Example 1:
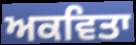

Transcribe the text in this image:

ਅਕਵਿਤਾ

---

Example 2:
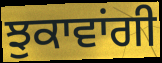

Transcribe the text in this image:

ਝੁਕਾਵਾਂਗੀ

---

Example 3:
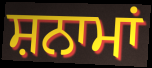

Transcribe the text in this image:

ਸ਼ਨਾਮਾਂ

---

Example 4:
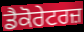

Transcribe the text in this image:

ਡੈਕੋਰੇਟਰਜ਼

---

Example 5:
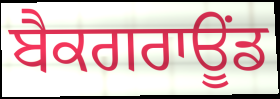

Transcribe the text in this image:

ਬੈਕਗਰਾਊਂਡ